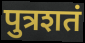
पुत्रशतं